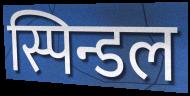
स्पिन्डल